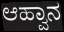
ಆಹ್ವಾನ